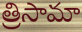
త్రిసామా